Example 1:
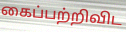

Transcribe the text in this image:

கைப்பற்றிவிட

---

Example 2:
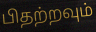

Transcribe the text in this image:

பிதற்றவும்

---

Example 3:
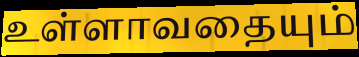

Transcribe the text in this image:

உள்ளாவதையும்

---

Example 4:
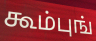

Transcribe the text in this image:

கூம்புங்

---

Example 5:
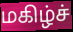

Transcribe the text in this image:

மகிழ்ச்